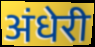
अंधेरी